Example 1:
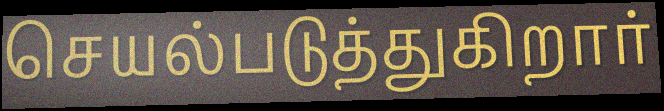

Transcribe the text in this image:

செயல்படுத்துகிறார்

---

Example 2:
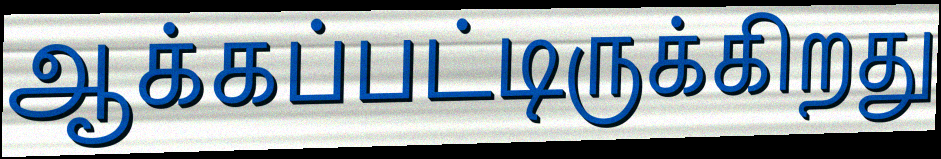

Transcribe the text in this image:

ஆக்கப்பட்டிருக்கிறது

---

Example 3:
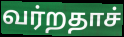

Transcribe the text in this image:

வர்றதாச்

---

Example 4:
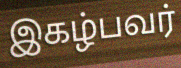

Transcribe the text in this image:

இகழ்பவர்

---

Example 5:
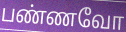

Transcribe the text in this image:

பண்ணவோ